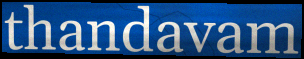
thandavam